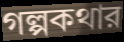
গল্পকথার